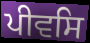
ਪੀਵਸਿ